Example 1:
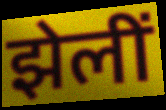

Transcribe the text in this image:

झेलीं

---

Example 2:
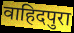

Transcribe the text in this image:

वाहिदपुरा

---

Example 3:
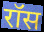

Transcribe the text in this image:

रॉस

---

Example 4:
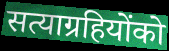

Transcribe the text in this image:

सत्याग्रहियोंको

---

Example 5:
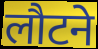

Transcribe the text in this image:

लौटने